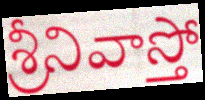
శ్రీనివాస్తో